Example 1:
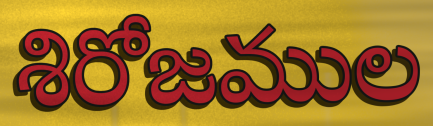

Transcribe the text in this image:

శిరోజముల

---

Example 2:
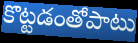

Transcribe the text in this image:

కొట్టడంతోపాటు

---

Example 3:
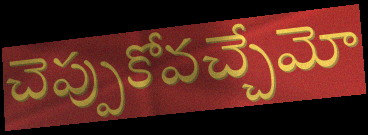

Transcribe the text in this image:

చెప్పుకోవచ్చేమో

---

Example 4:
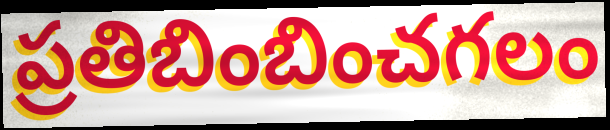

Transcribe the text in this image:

ప్రతిబింబించగలం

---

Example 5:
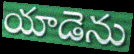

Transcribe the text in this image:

యాడెను